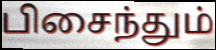
பிசைந்தும்